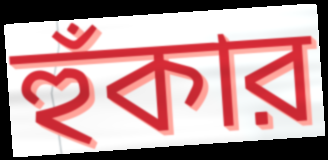
হুঁকার